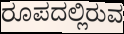
ರೂಪದಲ್ಲಿರುವ